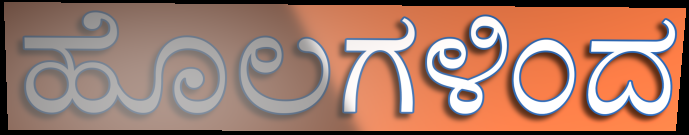
ಹೊಲಗಳಿಂದ